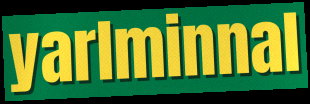
yarlminnal